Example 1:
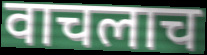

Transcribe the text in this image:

वाचलाच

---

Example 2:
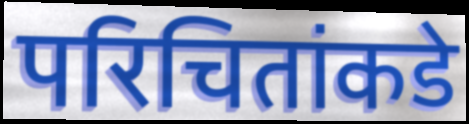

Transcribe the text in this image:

परिचितांकडे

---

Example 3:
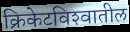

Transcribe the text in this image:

क्रिकेटविश्वातील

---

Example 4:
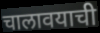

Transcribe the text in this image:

चालावयाची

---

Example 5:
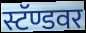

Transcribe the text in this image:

स्टॅण्डवर